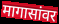
मागासांवर